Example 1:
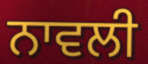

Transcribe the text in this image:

ਨਾਵਲੀ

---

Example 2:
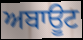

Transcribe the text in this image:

ਅਬਾਊਟ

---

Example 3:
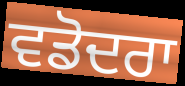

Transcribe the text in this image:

ਵਡੋਦਰਾ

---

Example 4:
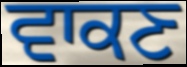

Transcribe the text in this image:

ਵਾਕਣ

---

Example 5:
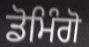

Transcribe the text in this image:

ਡੋਮਿੰਗੋ